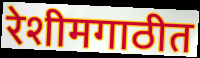
रेशीमगाठीत